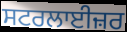
ਸਟਰਲਾਈਜ਼ਰ